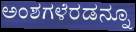
ಅಂಶಗಳೆರಡನ್ನೂ